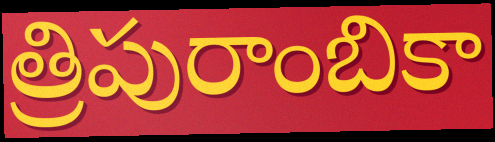
త్రిపురాంబికా